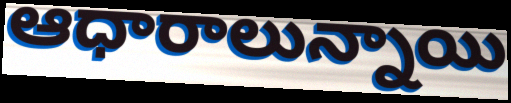
ఆధారాలున్నాయి